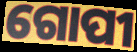
ଗୋପୀ